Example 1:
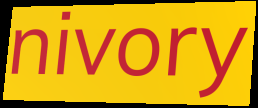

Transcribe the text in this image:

nivory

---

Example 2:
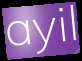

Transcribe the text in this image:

ayil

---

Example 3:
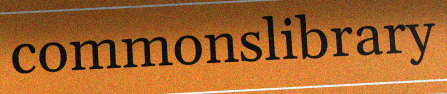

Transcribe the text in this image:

commonslibrary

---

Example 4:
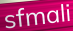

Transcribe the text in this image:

sfmali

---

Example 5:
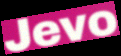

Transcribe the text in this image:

Jevo